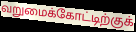
வறுமைக்கோட்டிற்குக்